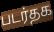
படர்தக